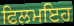
ਫਿਲਮਇਹ